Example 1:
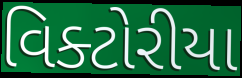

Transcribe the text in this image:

વિક્ટોરીયા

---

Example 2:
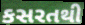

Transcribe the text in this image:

કસરતથી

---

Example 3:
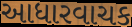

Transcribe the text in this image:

આધારવાચક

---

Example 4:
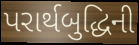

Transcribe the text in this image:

પરાર્થબુદ્ધિની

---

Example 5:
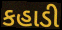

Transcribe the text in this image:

કહાડી